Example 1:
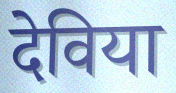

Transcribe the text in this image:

देविया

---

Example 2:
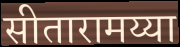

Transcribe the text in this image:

सीतारामय्या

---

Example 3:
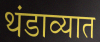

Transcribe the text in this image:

थंडाव्यात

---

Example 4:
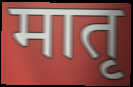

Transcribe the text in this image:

मातृ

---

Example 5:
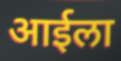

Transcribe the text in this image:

आईला